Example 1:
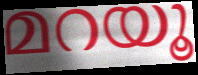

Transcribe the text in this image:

മറയൂ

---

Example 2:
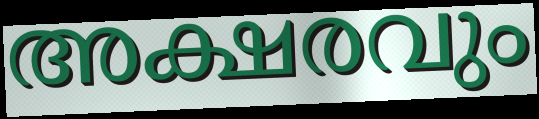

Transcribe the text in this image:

അക്ഷരവും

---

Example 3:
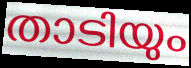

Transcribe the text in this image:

താടിയും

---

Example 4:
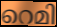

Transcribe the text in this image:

റെമി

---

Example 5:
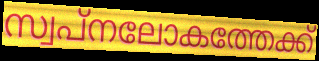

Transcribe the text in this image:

സ്വപ്നലോകത്തേക്ക്